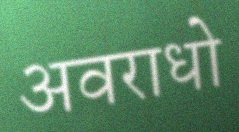
अवराधो